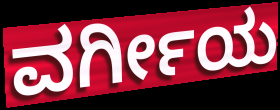
ವರ್ಗೀಯ